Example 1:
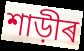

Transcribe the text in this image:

শাড়ীৰ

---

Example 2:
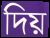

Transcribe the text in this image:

দিয়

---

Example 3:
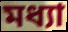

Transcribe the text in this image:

মধ্যা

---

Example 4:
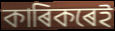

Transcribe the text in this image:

কাৰিকৰেই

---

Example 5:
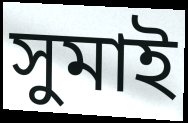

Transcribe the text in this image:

সুমাই